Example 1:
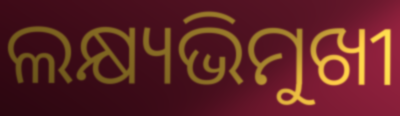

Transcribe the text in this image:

ଲକ୍ଷ୍ୟଭିମୁଖୀ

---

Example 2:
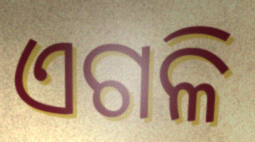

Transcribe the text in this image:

ଏଗଳି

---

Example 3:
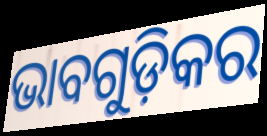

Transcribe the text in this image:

ଭାବଗୁଡ଼ିକର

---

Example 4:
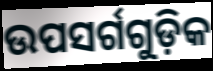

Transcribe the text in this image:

ଉପସର୍ଗଗୁଡ଼ିକ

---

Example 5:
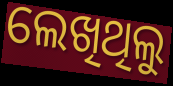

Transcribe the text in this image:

ଲେଖିଥିଲୁ